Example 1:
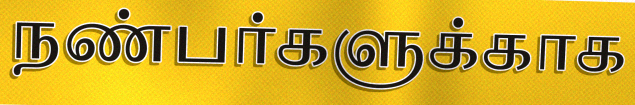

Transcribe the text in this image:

நண்பர்களுக்காக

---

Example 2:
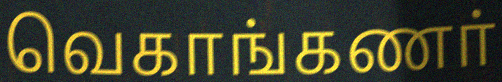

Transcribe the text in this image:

வெகாங்கணர்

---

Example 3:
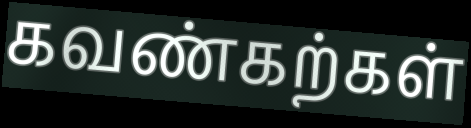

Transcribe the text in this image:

கவண்கற்கள்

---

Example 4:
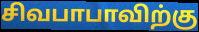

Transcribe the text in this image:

சிவபாபாவிற்கு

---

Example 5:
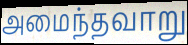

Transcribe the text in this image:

அமைந்தவாறு